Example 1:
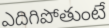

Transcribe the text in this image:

ఎదిగిపోతుంటే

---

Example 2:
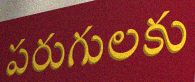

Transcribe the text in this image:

పరుగులకు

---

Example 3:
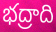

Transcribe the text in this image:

భద్రాది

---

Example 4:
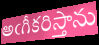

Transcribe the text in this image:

అఁగీకరిస్తాను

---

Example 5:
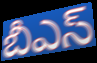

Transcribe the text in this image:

బీఎస్